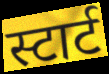
स्टार्ट